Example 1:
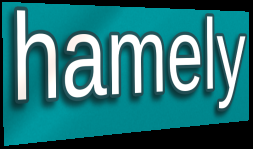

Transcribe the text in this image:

hamely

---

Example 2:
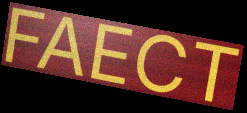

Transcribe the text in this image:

FAECT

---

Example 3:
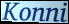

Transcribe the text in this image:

Konni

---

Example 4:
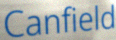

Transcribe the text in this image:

Canfield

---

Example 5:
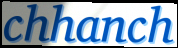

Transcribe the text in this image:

chhanch